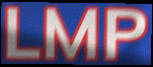
LMP